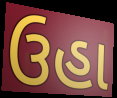
ઉહા